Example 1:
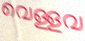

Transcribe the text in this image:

വെള്ളവ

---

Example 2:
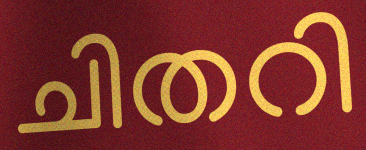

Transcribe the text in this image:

ചിതറി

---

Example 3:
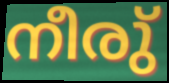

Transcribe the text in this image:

നീരു്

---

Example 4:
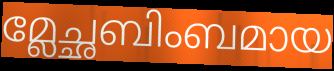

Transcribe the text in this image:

മ്ലേച്ഛബിംബമായ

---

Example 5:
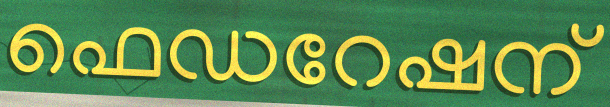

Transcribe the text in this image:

ഫെഡറേഷന്